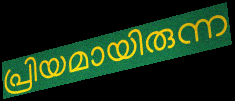
പ്രിയമായിരുന്ന